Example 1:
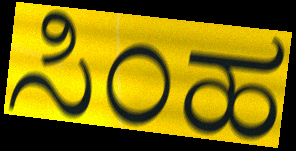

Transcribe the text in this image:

ಸಿಂಹ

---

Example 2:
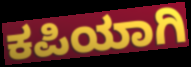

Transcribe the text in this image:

ಕಪಿಯಾಗಿ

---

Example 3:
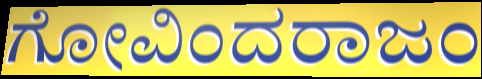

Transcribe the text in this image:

ಗೋವಿಂದರಾಜಂ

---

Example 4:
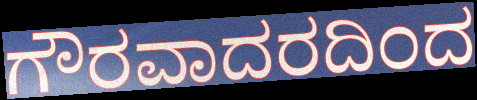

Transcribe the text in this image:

ಗೌರವಾದರದಿಂದ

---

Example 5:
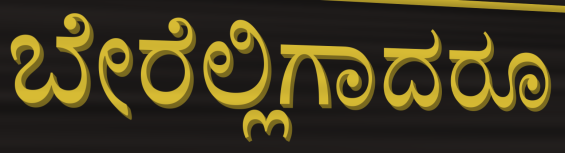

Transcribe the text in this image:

ಬೇರೆಲ್ಲಿಗಾದರೂ